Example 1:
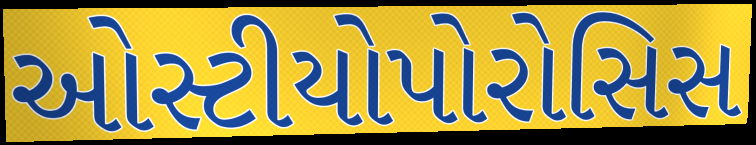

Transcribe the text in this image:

ઓસ્ટીયોપોરોસિસ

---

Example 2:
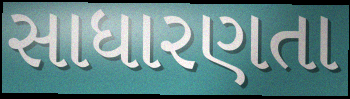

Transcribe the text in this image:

સાધારણતા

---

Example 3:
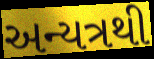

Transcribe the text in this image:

અન્યત્રથી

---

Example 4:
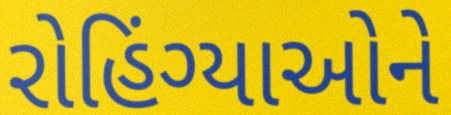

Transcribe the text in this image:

રોહિંગ્યાઓને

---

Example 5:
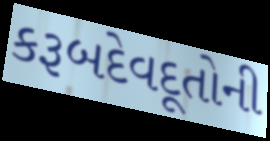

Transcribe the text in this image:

કરૂબદેવદૂતોની